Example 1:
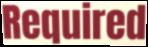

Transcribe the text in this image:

Required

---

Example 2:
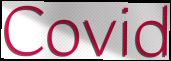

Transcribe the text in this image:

Covid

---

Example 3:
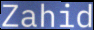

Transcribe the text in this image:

Zahid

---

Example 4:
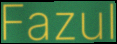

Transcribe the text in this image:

Fazul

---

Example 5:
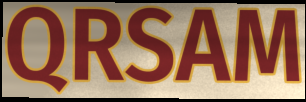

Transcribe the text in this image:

QRSAM